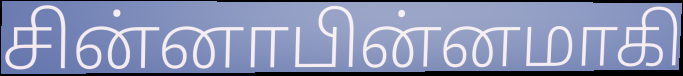
சின்னாபின்னமாகி